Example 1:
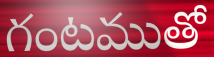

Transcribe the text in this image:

గంటముతో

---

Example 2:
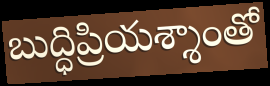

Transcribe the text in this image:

బుద్ధిప్రియశ్శాంతో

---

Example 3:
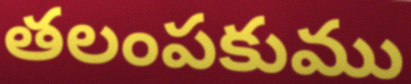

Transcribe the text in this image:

తలంపకుము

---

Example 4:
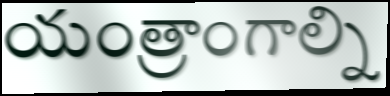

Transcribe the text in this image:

యంత్రాంగాల్ని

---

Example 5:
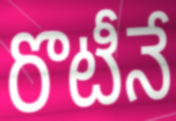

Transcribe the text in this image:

రొటీనే